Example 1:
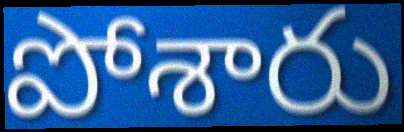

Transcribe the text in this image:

పోశారు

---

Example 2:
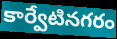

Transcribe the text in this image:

కార్వేటినగరం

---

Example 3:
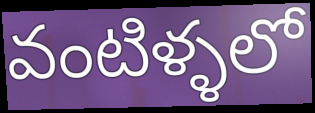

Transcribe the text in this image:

వంటిళ్ళలో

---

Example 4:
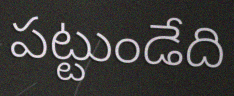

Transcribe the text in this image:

పట్టుండేది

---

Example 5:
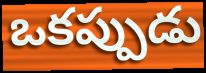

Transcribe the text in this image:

ఒకప్పుడు